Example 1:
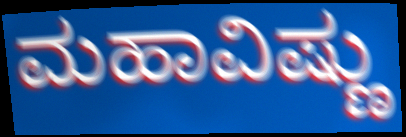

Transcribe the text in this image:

ಮಹಾವಿಷ್ಣು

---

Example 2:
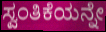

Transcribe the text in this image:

ಸ್ವಂತಿಕೆಯನ್ನೇ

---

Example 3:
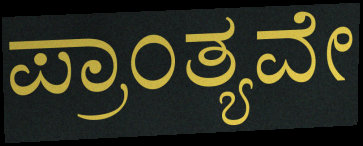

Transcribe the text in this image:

ಪ್ರಾಂತ್ಯವೇ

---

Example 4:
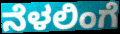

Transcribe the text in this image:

ನೆಳಲಿಂಗೆ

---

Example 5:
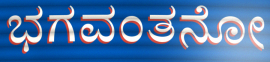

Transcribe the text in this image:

ಭಗವಂತನೋ